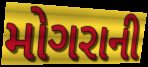
મોગરાની